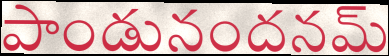
పాండునందనమ్